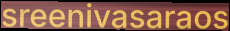
sreenivasaraos